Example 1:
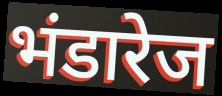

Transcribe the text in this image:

भंडारेज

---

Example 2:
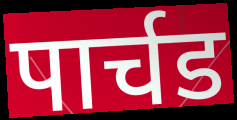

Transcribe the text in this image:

पार्चड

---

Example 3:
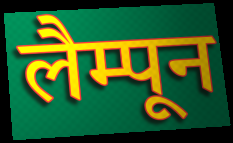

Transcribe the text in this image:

लैम्पून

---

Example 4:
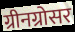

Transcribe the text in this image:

ग्रीनग्रोसर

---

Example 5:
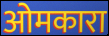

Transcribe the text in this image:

ओमकारा